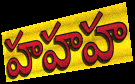
హహహ